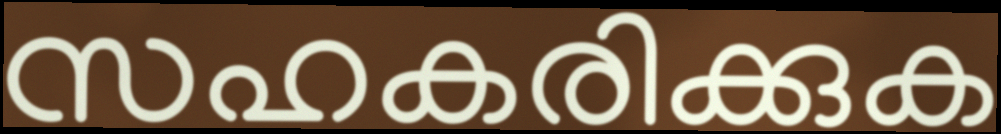
സഹകരിക്കുക